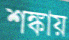
শঙ্কায়